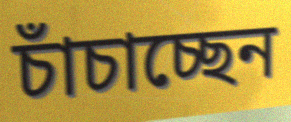
চাঁচাচ্ছেন